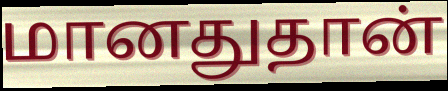
மானதுதான்